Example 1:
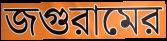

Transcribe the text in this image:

জগুরামের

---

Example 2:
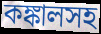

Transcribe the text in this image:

কঙ্কালসহ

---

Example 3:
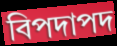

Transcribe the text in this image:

বিপদাপদ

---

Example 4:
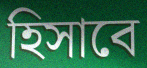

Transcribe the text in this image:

হিসাবে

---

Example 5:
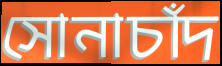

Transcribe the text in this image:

সোনাচাঁদ